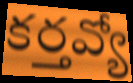
కర్తవ్యో